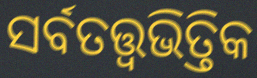
ସର୍ବତତ୍ତ୍ୱଭିତ୍ତିକ